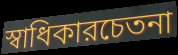
স্বাধিকারচেতনা